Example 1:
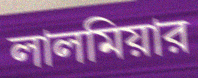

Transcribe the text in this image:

লালমিয়ার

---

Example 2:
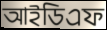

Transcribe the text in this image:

আইডিএফ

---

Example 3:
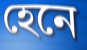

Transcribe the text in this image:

হেনে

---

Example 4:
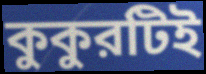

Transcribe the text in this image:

কুকুরটিই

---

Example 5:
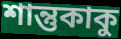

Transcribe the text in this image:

শান্তুকাকু